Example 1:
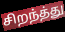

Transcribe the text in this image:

சிறந்த்து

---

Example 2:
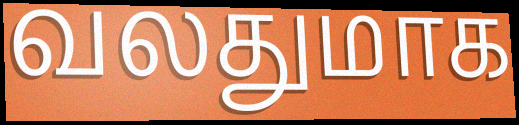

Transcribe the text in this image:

வலதுமாக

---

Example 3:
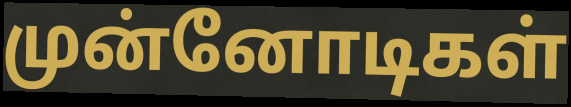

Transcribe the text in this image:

முன்னோடிகள்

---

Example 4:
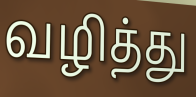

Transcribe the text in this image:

வழித்து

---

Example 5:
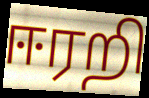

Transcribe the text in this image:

ஈரறி